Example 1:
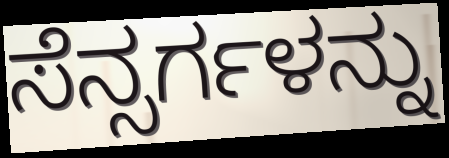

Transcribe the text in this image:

ಸೆನ್ಸರ್ಗಳನ್ನು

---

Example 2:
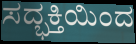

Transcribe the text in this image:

ಸದ್ಭಕ್ತಿಯಿಂದ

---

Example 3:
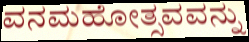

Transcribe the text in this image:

ವನಮಹೋತ್ಸವವನ್ನು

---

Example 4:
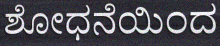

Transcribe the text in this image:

ಶೋಧನೆಯಿಂದ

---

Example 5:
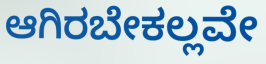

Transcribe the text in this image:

ಆಗಿರಬೇಕಲ್ಲವೇ